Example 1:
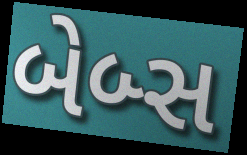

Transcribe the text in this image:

બેબ્સ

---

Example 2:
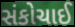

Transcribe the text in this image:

સંકોચાઈ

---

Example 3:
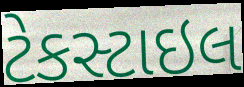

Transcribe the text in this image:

ટેકસ્ટાઇલ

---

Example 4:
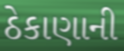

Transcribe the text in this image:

ઠેકાણાની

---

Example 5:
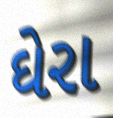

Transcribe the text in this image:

ઘેરા